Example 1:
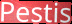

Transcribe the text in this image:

Pestis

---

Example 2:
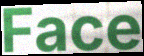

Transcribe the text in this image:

Face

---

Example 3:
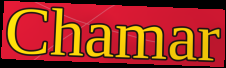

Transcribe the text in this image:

Chamar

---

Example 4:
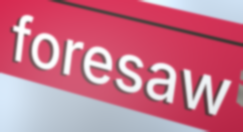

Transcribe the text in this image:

foresaw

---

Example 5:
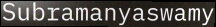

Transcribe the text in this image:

Subramanyaswamy